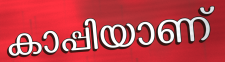
കാപ്പിയാണ്